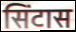
सिंटास